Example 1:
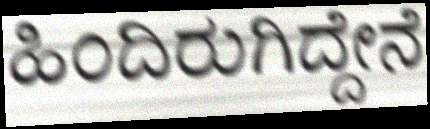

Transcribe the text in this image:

ಹಿಂದಿರುಗಿದ್ದೇನೆ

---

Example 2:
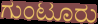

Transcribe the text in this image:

ಗುಂಟೂರು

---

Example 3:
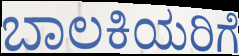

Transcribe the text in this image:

ಬಾಲಕಿಯರಿಗೆ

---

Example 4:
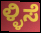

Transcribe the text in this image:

ಳ್ಳಿಸೆ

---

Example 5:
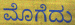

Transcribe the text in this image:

ಮೊಗೆದು